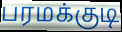
பரமக்குடி